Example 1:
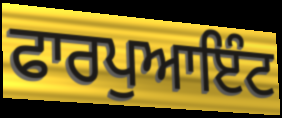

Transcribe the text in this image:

ਫਾਰਪੁਆਇੰਟ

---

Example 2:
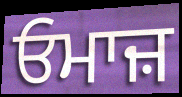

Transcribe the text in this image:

ਓਮਾਜ਼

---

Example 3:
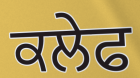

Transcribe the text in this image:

ਕਲੇਫ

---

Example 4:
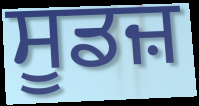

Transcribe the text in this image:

ਸੂਡਜ਼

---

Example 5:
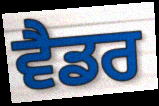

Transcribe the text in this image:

ਵੈਡਰ